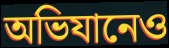
অভিযানেও